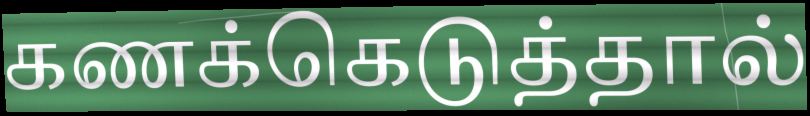
கணக்கெடுத்தால்